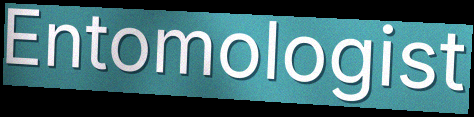
Entomologist